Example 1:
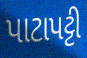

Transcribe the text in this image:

પાટાપટ્ટી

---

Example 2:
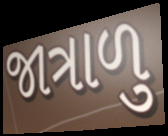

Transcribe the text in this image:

જાત્રાળુ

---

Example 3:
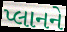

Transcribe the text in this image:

પ્લાનને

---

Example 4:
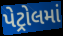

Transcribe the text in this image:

પેટ્રોલમાં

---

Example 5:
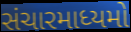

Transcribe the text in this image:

સંચારમાધ્યમો